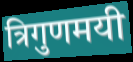
त्रिगुणमयी